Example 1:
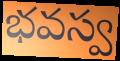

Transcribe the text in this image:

భవస్వ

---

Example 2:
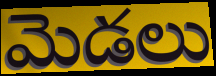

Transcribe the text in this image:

మెడలు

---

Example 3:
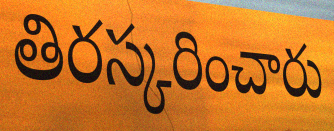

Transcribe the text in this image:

తిరస్కరించారు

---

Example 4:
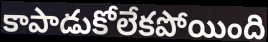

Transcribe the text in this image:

కాపాడుకోలేకపోయింది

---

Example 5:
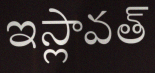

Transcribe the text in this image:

ఇస్లావత్